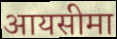
आयसीमा